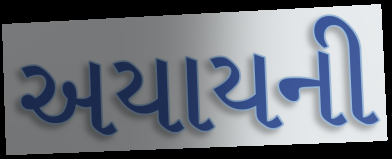
અયાયની